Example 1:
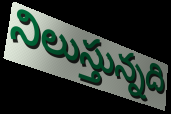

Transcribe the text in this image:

నిలుస్తున్నది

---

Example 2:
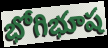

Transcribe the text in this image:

భోగిభూష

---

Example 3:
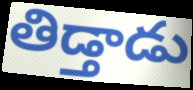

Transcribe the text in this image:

తిడ్తాడు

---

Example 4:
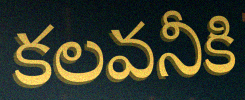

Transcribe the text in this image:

కలవనీకి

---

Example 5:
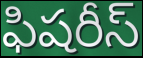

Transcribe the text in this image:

ఫిషరీస్